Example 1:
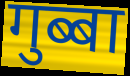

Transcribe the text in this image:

गुब्बा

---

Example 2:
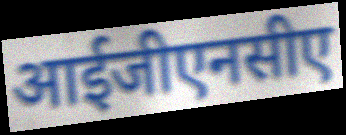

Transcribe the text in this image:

आईजीएनसीए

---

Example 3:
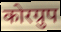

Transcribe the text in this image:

कोरग्रुप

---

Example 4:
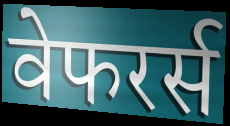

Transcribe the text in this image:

वेफरर्स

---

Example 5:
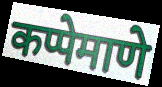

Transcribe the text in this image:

कप्पेमाणे